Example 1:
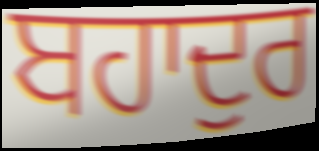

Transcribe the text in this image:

ਬਹਾਦੁਰ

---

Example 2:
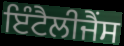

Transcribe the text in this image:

ਇੰਟੈਲੀਜੈਂਸ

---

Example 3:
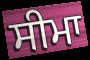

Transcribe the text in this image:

ਸੀਮਾ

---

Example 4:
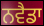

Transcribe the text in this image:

ਨਵੈਡਾ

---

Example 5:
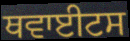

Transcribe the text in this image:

ਥਵਾਈਟਸ